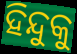
ହିନ୍ଦୁକୁ